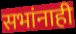
सभांनाही